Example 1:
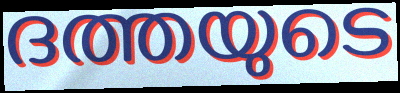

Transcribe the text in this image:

ദത്തയുടെ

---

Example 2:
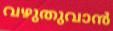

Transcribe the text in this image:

വഴുതുവാൻ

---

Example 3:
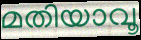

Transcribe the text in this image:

മതിയാവൂ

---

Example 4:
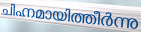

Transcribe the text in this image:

ചിഹ്നമായിത്തീർന്നു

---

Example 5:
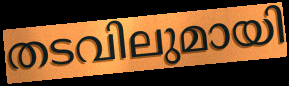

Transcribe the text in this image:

തടവിലുമായി